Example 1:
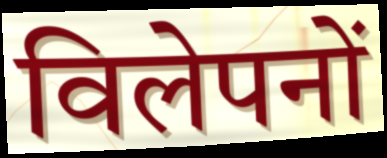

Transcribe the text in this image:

विलेपनों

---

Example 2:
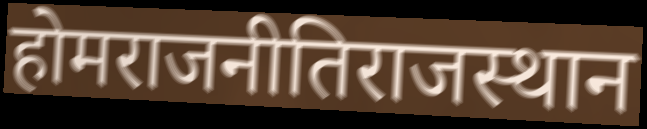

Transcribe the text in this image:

होमराजनीतिराजस्थान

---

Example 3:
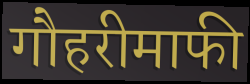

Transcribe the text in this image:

गौहरीमाफी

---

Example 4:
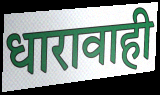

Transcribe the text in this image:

धारावाही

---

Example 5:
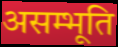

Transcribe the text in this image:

असम्भूति